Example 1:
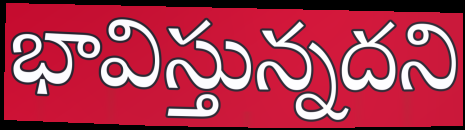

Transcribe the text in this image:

భావిస్తున్నదని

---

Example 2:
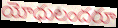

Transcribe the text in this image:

యోధులందరూ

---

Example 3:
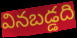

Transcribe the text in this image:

వినబడ్డది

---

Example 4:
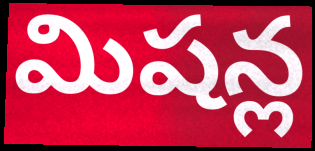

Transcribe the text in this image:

మిషన్ల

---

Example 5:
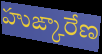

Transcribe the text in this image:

హుఙ్కారేణ